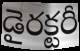
డైరక్టరీ